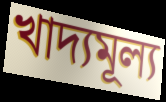
খাদ্যমূল্য